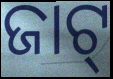
ଜାଟ୍